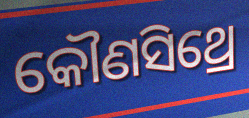
କୌଣସିଥ୍ରେ